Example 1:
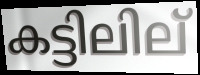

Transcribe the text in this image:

കട്ടിലില്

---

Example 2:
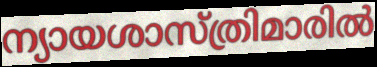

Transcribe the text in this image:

ന്യായശാസ്ത്രിമാരിൽ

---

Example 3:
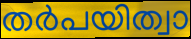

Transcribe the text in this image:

തർപയിത്വാ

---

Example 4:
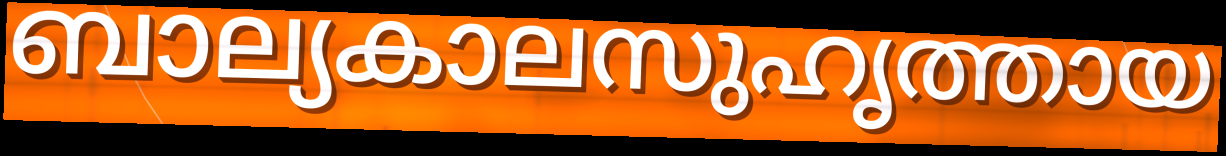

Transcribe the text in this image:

ബാല്യകാലസുഹൃത്തായ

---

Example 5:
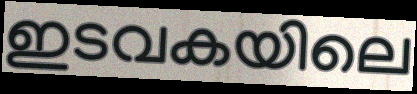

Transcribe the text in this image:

ഇടവകയിലെ